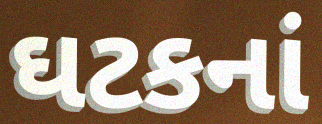
ઘટકનાં